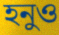
হনুও